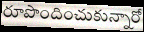
రూపొందించుకున్నారో